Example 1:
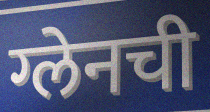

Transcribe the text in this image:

ग्लेनची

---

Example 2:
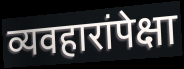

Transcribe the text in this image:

व्यवहारांपेक्षा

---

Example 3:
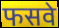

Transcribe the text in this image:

फसवे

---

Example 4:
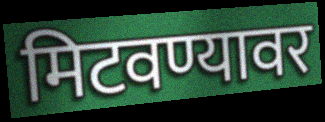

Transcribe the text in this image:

मिटवण्यावर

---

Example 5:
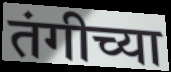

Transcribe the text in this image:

तंगीच्या